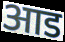
आड